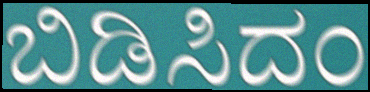
ಬಿಡಿಸಿದಂ